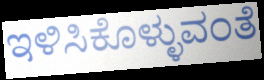
ಇಳಿಸಿಕೊಳ್ಳುವಂತೆ